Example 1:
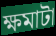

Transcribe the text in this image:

ক্ষমাটা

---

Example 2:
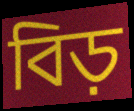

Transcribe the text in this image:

বিড়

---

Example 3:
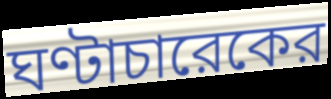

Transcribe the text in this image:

ঘণ্টাচারেকের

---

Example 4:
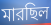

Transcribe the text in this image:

মারছিল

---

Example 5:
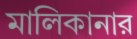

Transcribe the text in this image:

মালিকানার